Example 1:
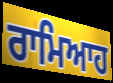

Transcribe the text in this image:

ਰਾਮਿਆਹ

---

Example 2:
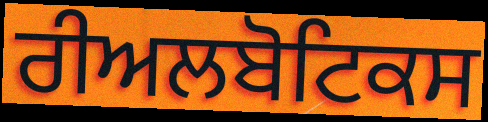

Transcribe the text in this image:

ਰੀਅਲਬੋਟਿਕਸ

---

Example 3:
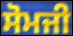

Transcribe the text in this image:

ਸੋਮਜੀ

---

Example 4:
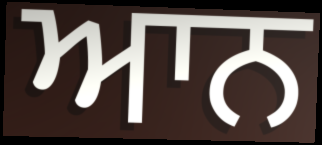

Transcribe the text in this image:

ਆਨ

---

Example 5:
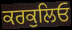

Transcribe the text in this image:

ਕਰਕੁਲਿਓ